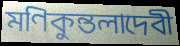
মণিকুন্তলাদেবী